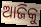
ଆଜିକୁ